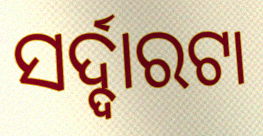
ସର୍ଦ୍ଦାରଟା